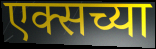
एक्सच्या